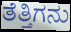
ತೆತ್ತಿಗನು